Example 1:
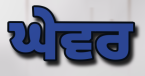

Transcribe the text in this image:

ਘੇਵਰ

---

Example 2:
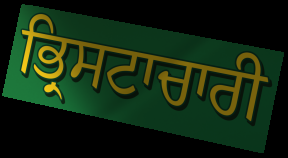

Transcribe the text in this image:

ਭ੍ਰਿਸਟਾਚਾਰੀ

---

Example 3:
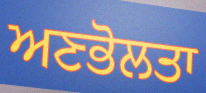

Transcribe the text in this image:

ਅਣਭੋਲਤਾ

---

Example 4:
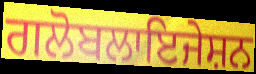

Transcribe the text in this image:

ਗਲੋਬਲਾਇਜੇਸ਼ਨ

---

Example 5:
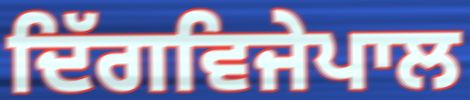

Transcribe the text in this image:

ਦਿੱਗਵਿਜੇਪਾਲ